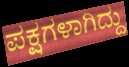
ಪಕ್ಷಗಳಾಗಿದ್ದು